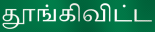
தூங்கிவிட்ட